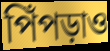
পিঁপড়াও